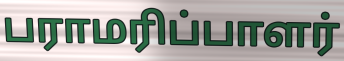
பராமரிப்பாளர்